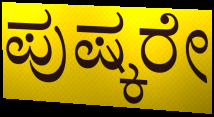
ಪುಷ್ಕರೇ